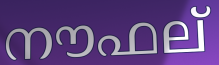
നൗഫല്